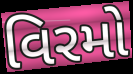
વિરમો